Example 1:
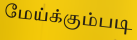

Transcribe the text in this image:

மேய்க்கும்படி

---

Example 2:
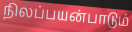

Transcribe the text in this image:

நிலப்பயன்பாடும்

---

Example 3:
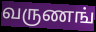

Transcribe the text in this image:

வருணங்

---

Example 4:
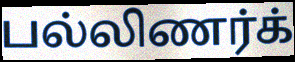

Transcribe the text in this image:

பல்லிணர்க்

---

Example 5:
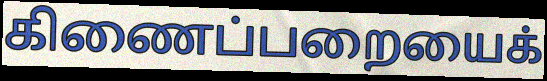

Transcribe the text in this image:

கிணைப்பறையைக்